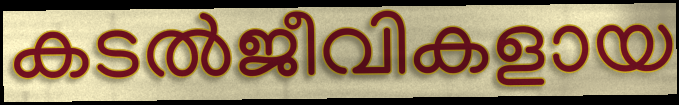
കടൽജീവികളായ